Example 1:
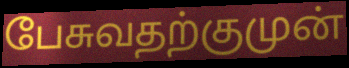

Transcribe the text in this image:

பேசுவதற்குமுன்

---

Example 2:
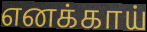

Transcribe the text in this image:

எனக்காய்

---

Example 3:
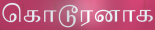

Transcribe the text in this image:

கொடூரனாக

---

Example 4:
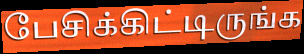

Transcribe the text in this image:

பேசிக்கிட்டிருங்க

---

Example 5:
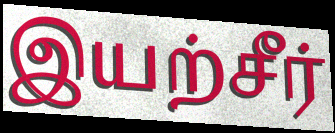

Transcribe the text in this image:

இயற்சீர்